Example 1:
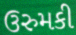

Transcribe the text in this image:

ઉરુમકી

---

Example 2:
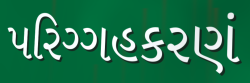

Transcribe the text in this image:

પરિગ્ગહકરણં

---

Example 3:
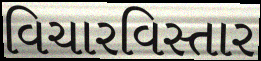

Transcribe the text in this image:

વિચારવિસ્તાર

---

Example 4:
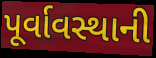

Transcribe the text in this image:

પૂર્વાવસ્થાની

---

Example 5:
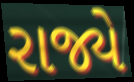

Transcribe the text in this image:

રાજ્યે